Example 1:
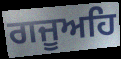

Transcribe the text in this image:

ਗਜੂਅਹਿ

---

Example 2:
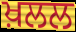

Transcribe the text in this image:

ਖ਼ਲਲ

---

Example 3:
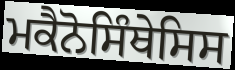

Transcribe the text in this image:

ਮਕੈਨੋਸਿੰਥੇਸਿਸ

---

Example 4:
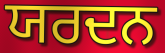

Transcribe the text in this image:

ਯਰਦਨ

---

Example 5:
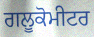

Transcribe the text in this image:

ਗਲੂਕੋਮੀਟਰ